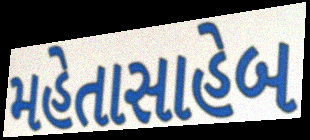
મહેતાસાહેબ